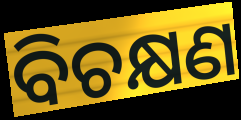
ବିଚକ୍ଷଣ